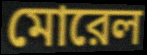
মোরেল